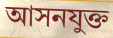
আসনযুক্ত